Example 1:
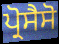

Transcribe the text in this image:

ਪ੍ਰੋਸੈਸੋ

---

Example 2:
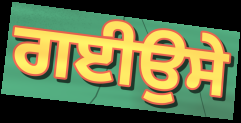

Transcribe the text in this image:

ਗਈਉਸੇ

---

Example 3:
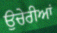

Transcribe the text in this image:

ਉਚੇਰੀਆਂ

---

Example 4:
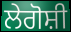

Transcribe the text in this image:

ਲੇਗੋਸ਼ੀ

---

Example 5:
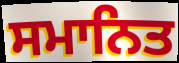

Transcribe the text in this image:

ਸਮਾਨਿਤ